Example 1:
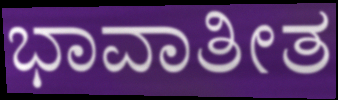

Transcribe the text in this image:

ಭಾವಾತೀತ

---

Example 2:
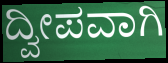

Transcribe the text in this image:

ದ್ವೀಪವಾಗಿ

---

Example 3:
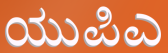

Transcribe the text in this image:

ಯುಪಿಎ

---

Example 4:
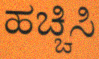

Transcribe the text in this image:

ಹಚ್ಚಿಸಿ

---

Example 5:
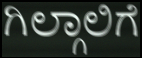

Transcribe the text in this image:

ಗಿಲ್ಗಾಲಿಗೆ